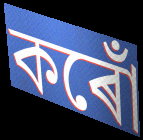
কৰোঁ